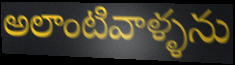
అలాంటివాళ్ళను